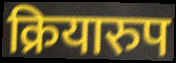
क्रियारुप